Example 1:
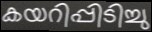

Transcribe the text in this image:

കയറിപ്പിടിച്ചു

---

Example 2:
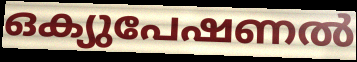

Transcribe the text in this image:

ഒക്യുപേഷണൽ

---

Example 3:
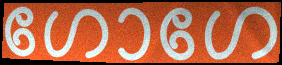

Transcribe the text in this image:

ഗോഗേ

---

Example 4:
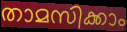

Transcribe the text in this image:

താമസിക്കാം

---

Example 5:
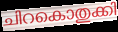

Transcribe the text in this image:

ചിറകൊതുക്കി